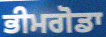
ਭੀਮਗੋਡਾ